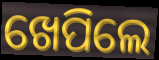
ଖେପିଲେ